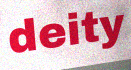
deity